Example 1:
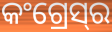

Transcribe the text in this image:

କଂଗ୍ରେସ୍‌ର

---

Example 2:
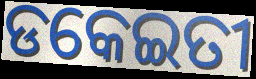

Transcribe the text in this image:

ଡକେଇତୀ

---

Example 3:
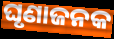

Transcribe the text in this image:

ଘୃଣାଜନକ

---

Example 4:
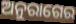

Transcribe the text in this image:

ଅନୁରାଗେର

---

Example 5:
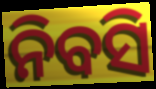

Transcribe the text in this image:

ନିବସି